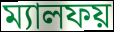
ম্যালফয়